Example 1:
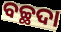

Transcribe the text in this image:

ବଚ୍ଛଦା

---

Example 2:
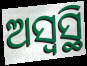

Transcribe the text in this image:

ଅସ୍ୱସ୍ଥି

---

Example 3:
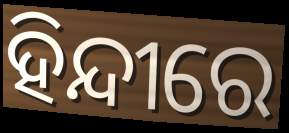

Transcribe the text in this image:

ହିନ୍ଦୀରେ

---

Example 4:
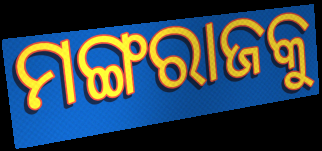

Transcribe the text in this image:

ମଙ୍ଗରାଜକୁ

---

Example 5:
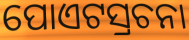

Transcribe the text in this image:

ପୋଏଟସ୍ରଚନା